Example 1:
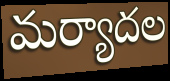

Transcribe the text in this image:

మర్యాదల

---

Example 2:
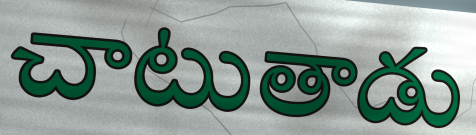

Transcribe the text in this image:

చాటుతాడు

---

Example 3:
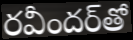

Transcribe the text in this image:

రవీందర్‌తో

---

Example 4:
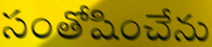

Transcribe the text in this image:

సంతోషించేను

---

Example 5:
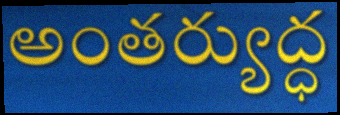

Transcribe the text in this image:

అంతర్యుద్ధ